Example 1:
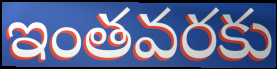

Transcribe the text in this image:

ఇంతవరకు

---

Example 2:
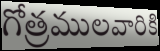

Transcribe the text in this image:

గోత్రములవారికి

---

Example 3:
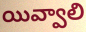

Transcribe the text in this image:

యివ్వాలి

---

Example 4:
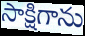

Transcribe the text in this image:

సాక్షిగాను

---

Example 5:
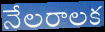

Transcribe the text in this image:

నేలరాలక